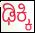
ಢಿಕ್ಕಿ